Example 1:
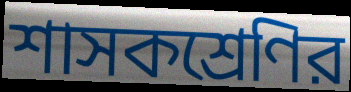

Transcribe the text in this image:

শাসকশ্রেণির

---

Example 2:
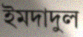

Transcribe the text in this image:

ইমদাদুল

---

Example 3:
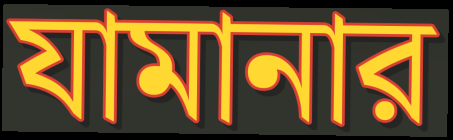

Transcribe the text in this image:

যামানার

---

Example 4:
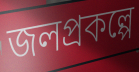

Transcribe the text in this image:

জলপ্রকল্পে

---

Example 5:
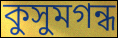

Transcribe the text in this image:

কুসুমগন্ধ